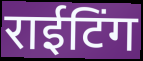
राईटिंग